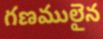
గణములైన